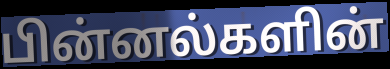
பின்னல்களின்